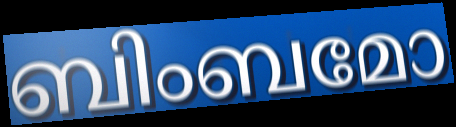
ബിംബമോ